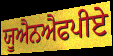
ਯੂਐਨਐਫਪੀਏ